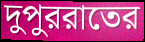
দুপুররাতের